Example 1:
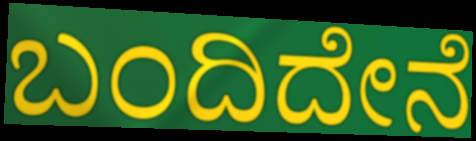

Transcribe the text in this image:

ಬಂದಿದೇನೆ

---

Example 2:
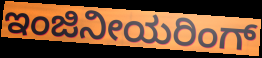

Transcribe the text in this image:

ಇಂಜಿನೀಯರಿಂಗ್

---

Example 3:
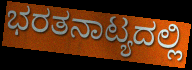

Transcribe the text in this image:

ಭರತನಾಟ್ಯದಲ್ಲಿ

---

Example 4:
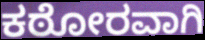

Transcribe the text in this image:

ಕಠೋರವಾಗಿ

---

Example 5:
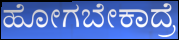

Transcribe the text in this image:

ಹೋಗಬೇಕಾದ್ರೆ